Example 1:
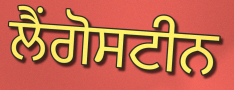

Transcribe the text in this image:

ਲੈਂਗੋਸਟੀਨ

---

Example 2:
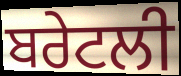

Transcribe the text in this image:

ਬਰੇਟਲੀ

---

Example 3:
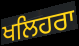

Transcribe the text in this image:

ਖਲਿਹਰਾ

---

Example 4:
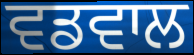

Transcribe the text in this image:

ਵਡਵਾਲ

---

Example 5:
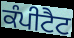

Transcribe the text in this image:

ਕੰਪੀਟੈਟ